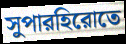
সুপারহিরোতে